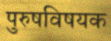
पुरुषविषयक